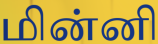
மின்னி